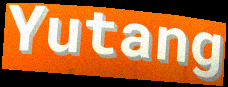
Yutang